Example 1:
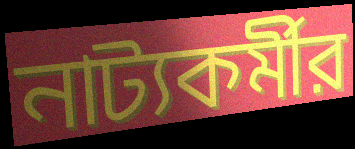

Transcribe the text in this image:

নাট্যকর্মীর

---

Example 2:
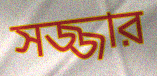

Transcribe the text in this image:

সজ্জার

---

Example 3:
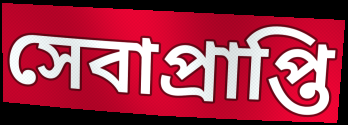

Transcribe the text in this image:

সেবাপ্রাপ্তি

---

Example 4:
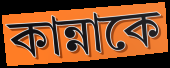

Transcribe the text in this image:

কান্নাকে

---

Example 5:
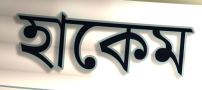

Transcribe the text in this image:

হাকেম